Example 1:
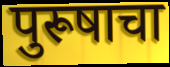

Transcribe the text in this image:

पुरूषाचा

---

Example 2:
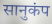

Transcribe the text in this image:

सानुकंप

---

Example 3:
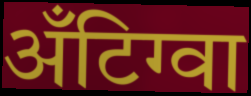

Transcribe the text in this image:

अँटिग्वा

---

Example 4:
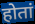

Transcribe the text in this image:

होतां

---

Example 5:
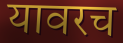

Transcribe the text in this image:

यावरच